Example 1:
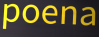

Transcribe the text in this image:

poena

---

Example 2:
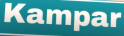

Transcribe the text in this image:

Kampar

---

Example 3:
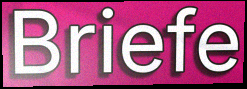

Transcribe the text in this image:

Briefe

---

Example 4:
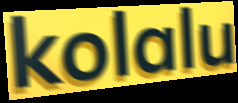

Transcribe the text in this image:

kolalu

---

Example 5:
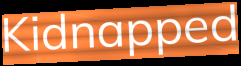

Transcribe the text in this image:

Kidnapped